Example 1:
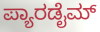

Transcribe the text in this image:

ಪ್ಯಾರಡೈಮ್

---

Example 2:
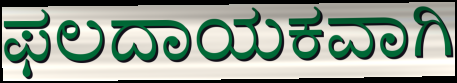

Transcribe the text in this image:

ಫಲದಾಯಕವಾಗಿ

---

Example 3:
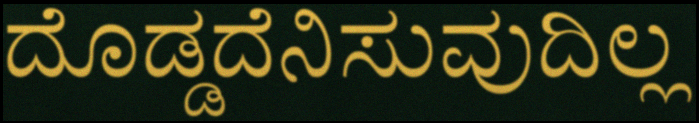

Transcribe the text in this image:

ದೊಡ್ಡದೆನಿಸುವುದಿಲ್ಲ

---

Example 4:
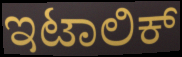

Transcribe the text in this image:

ಇಟಾಲಿಕ್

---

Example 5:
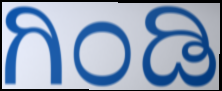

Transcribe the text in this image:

ಗಿಂಡಿ